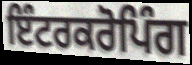
ਇੰਟਰਕਰੋਪਿੰਗ